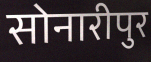
सोनारीपुर